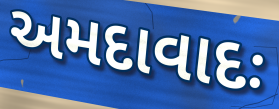
અમદાવાદઃ